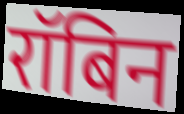
रॉबिन